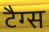
टैग्स